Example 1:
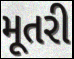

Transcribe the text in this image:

મૂતરી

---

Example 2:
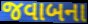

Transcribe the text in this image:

જવાબના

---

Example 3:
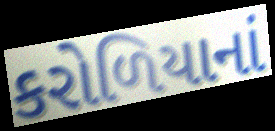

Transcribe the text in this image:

કરોળિયાનાં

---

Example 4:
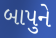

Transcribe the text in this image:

બાપુને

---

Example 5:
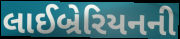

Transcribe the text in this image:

લાઈબ્રેરિયનની